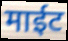
माईट